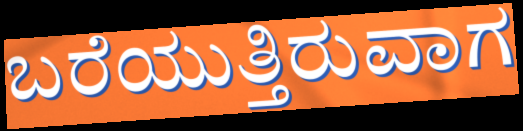
ಬರೆಯುತ್ತಿರುವಾಗ